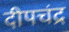
दीपचंद्र